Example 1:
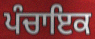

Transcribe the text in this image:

ਪੰਚਾਇਕ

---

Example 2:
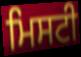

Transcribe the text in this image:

ਮਿਸਟੀ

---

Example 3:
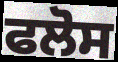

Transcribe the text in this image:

ਫਲੋਸ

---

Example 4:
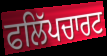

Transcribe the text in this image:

ਫਲਿੱਪਚਾਰਟ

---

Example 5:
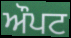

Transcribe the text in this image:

ਔਪਟ